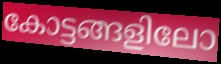
കോട്ടങ്ങളിലോ